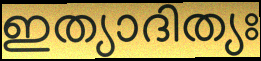
ഇത്യാദിത്യഃ